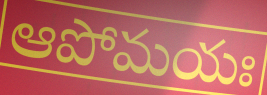
ఆపోమయః